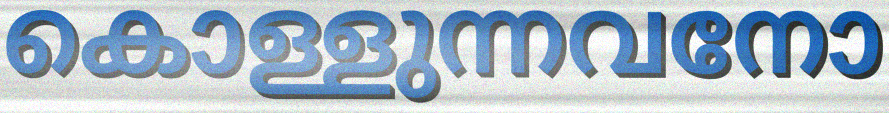
കൊള്ളുന്നവനോ